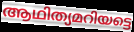
ആഥിത്യമറിയട്ടെ